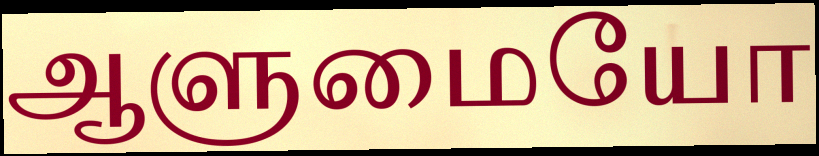
ஆளுமையோ